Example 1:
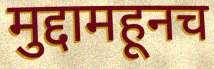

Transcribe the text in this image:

मुद्दामहूनच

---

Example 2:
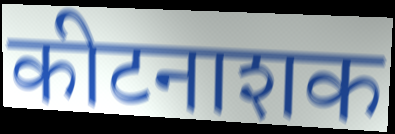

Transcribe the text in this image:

कीटनाशक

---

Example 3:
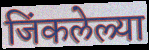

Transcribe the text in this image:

जिंकलेल्या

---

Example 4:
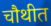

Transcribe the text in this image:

चौथीत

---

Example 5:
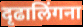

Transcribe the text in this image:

दृढालिंगना